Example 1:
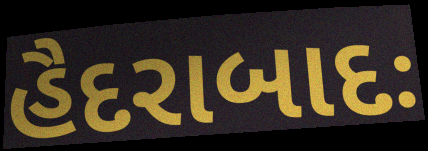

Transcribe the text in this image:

હૈદરાબાદઃ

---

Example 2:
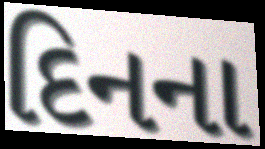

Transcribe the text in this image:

દિનના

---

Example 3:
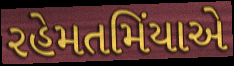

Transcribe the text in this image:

રહેમતમિંયાએ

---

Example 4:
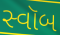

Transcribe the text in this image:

સ્વૉબ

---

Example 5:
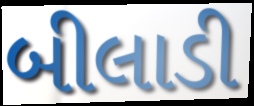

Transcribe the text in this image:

બીલાડી